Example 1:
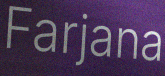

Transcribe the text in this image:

Farjana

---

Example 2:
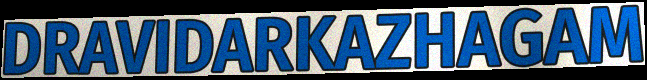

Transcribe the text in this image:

DRAVIDARKAZHAGAM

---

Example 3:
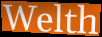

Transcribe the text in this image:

Welth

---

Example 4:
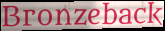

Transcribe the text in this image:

Bronzeback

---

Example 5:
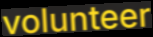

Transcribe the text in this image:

volunteer